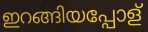
ഇറങ്ങിയപ്പോള്